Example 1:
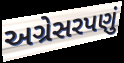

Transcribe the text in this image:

અગ્રેસરપણું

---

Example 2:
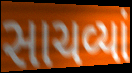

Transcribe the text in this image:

સાચવ્યાં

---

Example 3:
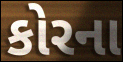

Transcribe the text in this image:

કોરના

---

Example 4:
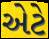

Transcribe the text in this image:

એટે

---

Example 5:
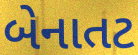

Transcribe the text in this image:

બેનાતટ